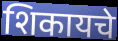
शिकायचे